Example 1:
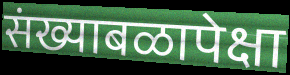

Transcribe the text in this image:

संख्याबळापेक्षा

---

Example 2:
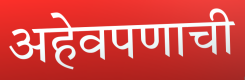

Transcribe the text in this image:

अहेवपणाची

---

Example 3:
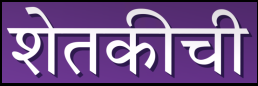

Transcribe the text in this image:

शेतकीची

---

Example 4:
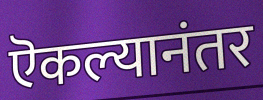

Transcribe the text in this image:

ऎकल्यानंतर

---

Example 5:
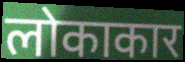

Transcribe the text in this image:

लोकाकार